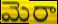
మెరా